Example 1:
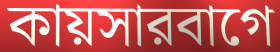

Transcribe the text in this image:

কায়সারবাগে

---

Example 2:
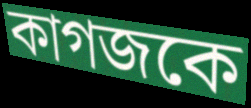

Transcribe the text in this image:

কাগজকে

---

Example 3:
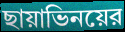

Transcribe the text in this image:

ছায়াভিনয়ের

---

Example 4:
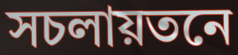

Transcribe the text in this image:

সচলায়তনে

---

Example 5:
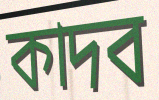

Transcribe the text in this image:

কাদব